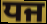
ਧਜ